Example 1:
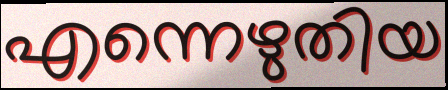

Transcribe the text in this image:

എന്നെഴുതിയ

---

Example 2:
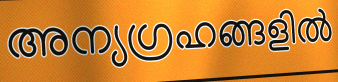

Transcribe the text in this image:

അന്യഗ്രഹങ്ങളിൽ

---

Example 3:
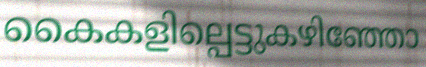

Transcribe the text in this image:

കൈകളില്പെട്ടുകഴിഞ്ഞോ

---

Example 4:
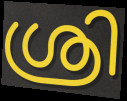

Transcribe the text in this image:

ശ്രി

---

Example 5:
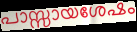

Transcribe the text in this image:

പാസ്സായശേഷം